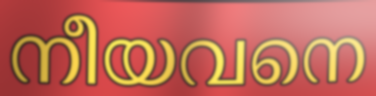
നീയവനെ